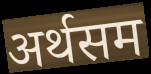
अर्थसम